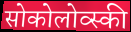
सोकोलोव्स्की